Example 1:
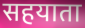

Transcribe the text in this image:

सहयाता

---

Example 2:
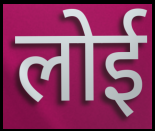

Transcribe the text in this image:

लोई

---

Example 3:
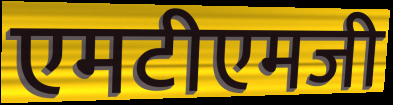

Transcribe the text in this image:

एमटीएमजी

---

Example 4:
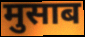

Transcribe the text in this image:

मुसाब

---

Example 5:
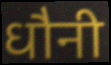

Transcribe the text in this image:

धौनी